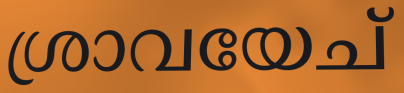
ശ്രാവയേച്